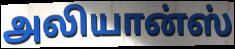
அலியான்ஸ்